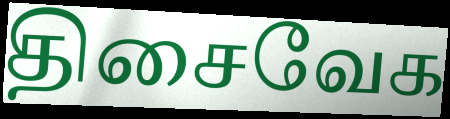
திசைவேக